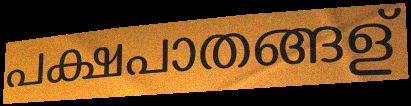
പക്ഷപാതങ്ങള്